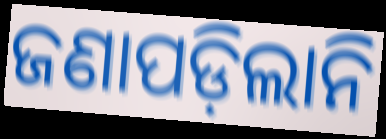
ଜଣାପଡ଼ିଲାନି